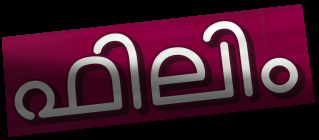
ഫിലിം